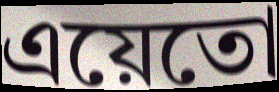
এয়েতো